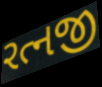
રત્નજી